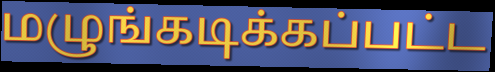
மழுங்கடிக்கப்பட்ட